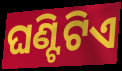
ଘଣ୍ଟିଟିଏ